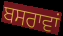
ਬਸਰਾਵਾਂ